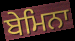
ਬੇਮਿਨਾ